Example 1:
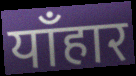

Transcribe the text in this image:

याँहार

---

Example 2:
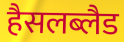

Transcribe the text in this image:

हैसलब्लैड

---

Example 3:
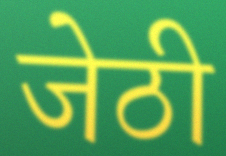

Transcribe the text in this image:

जेठी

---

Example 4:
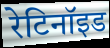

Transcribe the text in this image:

रेटिनॉइड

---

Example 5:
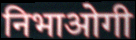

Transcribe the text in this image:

निभाओगी